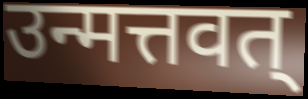
उन्मत्तवत्